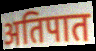
अतिपात